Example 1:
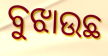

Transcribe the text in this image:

ବୁଝାଉଛ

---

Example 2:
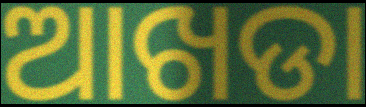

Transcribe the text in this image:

ଆଖଡା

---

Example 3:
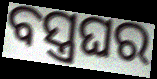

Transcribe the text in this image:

ବସ୍ତ୍ରଘର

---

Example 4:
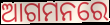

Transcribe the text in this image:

ଆଗମନରେ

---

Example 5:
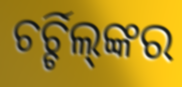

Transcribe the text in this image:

ଚର୍ଚ୍ଚିଲ୍‌ଙ୍କର